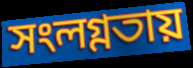
সংলগ্নতায়